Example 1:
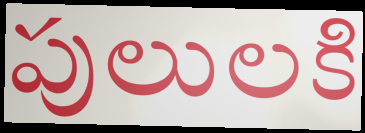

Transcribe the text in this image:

పులులకి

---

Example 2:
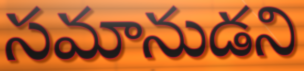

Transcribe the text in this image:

సమానుడని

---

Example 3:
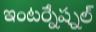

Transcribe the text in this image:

ఇంటర్నేష్నల్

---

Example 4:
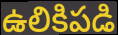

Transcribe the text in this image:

ఉలికిపడి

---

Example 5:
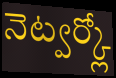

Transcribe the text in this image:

నెట్వర్క్లో